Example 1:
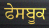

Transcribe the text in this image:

ਫੇਸਬੂਕ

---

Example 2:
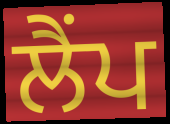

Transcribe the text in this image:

ਲੈਂਪ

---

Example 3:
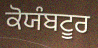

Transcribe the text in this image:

ਕੋਯੰਬਟੂਰ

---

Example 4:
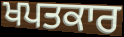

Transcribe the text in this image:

ਖਪਤਕਾਰ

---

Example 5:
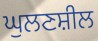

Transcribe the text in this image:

ਘੁਲਣਸ਼ੀਲ